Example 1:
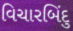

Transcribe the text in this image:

વિચારબિંદુ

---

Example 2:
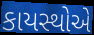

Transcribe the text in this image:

કાયસ્થોએ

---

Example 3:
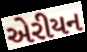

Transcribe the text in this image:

એરીયન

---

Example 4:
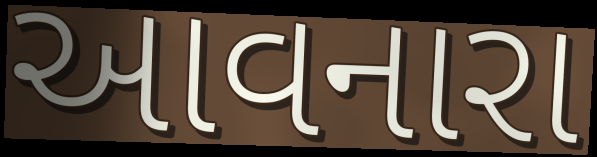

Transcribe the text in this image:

આવનારા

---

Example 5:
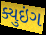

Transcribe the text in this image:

ક્યુઇંગ